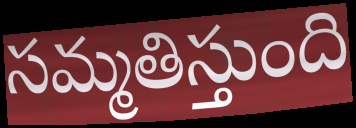
సమ్మతిస్తుంది